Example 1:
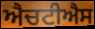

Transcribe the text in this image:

ਐਚਟੀਐਸ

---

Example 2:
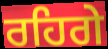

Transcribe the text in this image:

ਰਹਿਗੇ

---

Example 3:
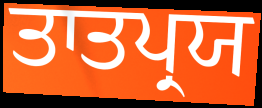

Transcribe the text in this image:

ਤਾਤਪ੍ਰਯ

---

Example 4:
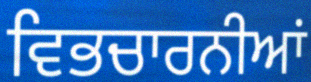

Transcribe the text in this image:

ਵਿਭਚਾਰਨੀਆਂ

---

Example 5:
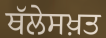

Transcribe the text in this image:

ਥੱਲੇਸਖ਼ਤ